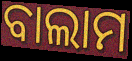
ବାଲାମ